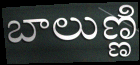
బాలుణ్ణి